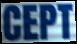
CEPT